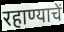
रहाण्याचें